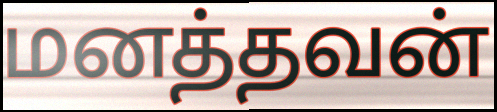
மனத்தவன்